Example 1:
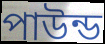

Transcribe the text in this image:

পাউন্ড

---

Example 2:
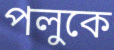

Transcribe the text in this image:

পলুকে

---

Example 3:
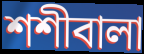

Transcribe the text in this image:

শশীবালা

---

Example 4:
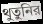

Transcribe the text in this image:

থুতুনির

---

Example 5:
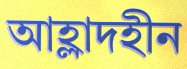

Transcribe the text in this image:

আহ্লাদহীন